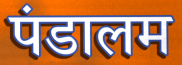
पंडालम